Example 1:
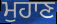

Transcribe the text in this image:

ਮੁਹਾਣ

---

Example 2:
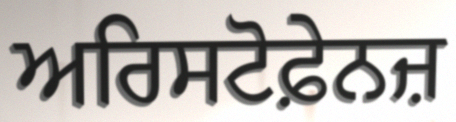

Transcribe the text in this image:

ਅਰਿਸਟੋਫ਼ੇਨਜ਼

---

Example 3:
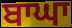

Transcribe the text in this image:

ਬਾਘਾ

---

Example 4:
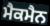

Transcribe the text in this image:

ਮੈਕਮੈਨ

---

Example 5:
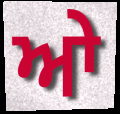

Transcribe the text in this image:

ਆੇ